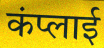
कंप्लाई